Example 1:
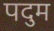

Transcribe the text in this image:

पदुम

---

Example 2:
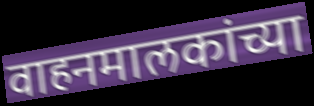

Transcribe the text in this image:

वाहनमालकांच्या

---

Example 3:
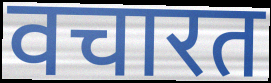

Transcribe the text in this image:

वचारत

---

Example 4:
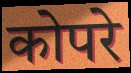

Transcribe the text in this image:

कोपरे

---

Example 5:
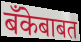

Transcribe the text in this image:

बँकेबाबत